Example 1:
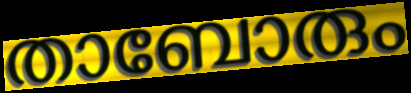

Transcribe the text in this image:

താബോരും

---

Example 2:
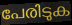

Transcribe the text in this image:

പേരിടുക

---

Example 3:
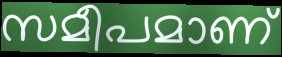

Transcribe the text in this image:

സമീപമാണ്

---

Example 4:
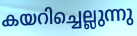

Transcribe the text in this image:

കയറിച്ചെല്ലുന്നു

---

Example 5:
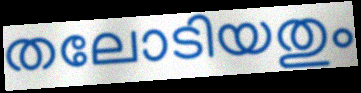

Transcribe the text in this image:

തലോടിയതും